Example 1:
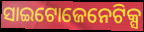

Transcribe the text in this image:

ସାଇଟୋଜେନେଟିକ୍ସ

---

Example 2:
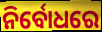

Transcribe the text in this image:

ନିର୍ବୋଧରେ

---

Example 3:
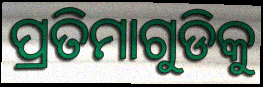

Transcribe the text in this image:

ପ୍ରତିମାଗୁଡିକୁ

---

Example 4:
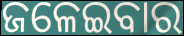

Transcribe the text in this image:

ଜଳେଇବାର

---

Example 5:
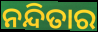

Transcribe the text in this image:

ନନ୍ଦିତାର